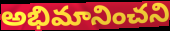
అభిమానించని